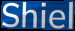
Shiel